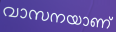
വാസനയാണ്